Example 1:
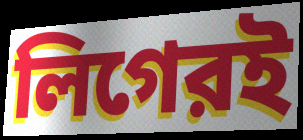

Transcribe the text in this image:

লিগেরই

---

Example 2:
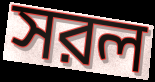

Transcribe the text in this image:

সরল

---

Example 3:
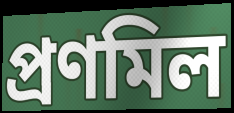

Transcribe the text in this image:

প্রণমিল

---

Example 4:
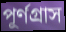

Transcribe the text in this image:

পূর্ণগ্রাস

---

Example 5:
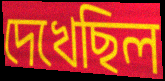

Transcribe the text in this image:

দেখেছিল